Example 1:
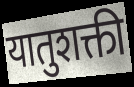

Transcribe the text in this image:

यातुशक्ती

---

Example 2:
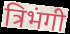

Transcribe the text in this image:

त्रिभंगी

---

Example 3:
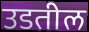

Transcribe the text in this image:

उडतील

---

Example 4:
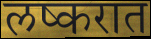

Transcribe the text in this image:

लष्करात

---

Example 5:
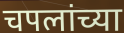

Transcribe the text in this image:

चपलांच्या